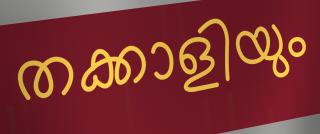
തക്കാളിയും